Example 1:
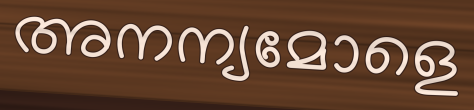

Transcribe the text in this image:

അനന്യമോളെ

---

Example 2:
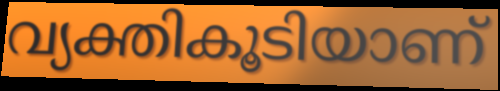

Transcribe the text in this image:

വ്യക്തികൂടിയാണ്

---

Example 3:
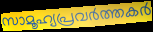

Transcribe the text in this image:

സാമൂഹ്യപ്രവർത്തകർ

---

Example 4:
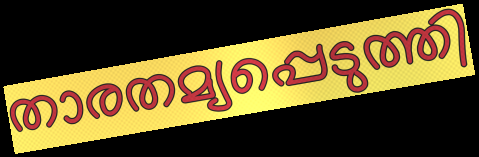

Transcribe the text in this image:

താരതമ്യപ്പെടുത്തി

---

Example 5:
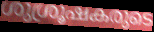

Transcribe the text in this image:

ശുശ്രൂഷകരുടെ